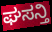
ಘಸನ್ತಿ